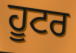
ਹੂਟਰ